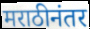
मराठीनंतर